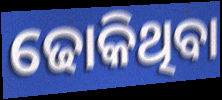
ଢୋକିଥିବା